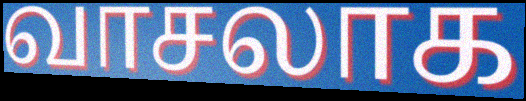
வாசலாக